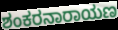
ಶಂಕರನಾರಾಯಣ